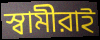
স্বামীরাই